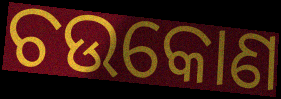
ଚଉକୋଣ